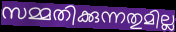
സമ്മതിക്കുന്നതുമില്ല